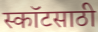
स्कॉटसाठी